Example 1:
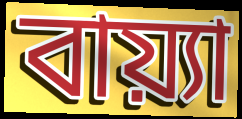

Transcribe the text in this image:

বায়্যা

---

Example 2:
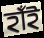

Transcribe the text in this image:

হাঁই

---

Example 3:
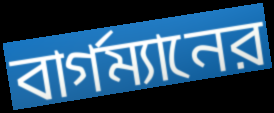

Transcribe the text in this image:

বার্গম্যানের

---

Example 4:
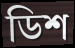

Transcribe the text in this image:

ডিশ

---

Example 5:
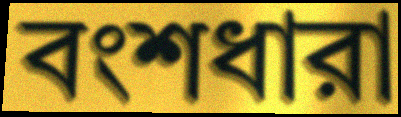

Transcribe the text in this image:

বংশধারা